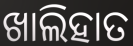
ଖାଲିହାତ